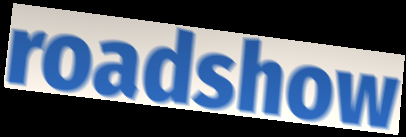
roadshow